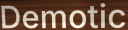
Demotic